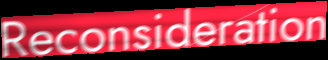
Reconsideration